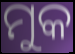
ମୁକ